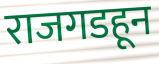
राजगडहून